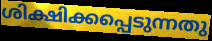
ശിക്ഷിക്കപ്പെടുന്നതു